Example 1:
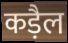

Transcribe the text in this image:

कड़ैल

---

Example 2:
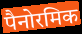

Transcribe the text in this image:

पैनोरमिक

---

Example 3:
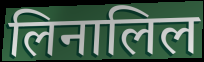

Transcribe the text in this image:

लिनालिल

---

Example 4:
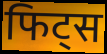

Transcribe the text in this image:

फिट्स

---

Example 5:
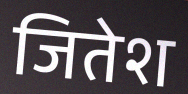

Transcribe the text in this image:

जितेश